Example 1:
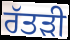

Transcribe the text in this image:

ਰੱਤੜੀ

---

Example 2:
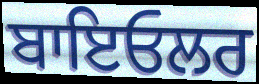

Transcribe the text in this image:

ਬਾਇਓਲਰ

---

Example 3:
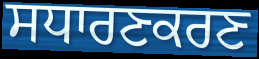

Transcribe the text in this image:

ਸਧਾਰਣਕਰਣ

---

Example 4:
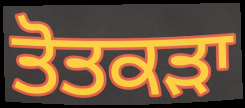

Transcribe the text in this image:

ਤੋਤਕੜਾ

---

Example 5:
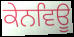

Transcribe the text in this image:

ਕੇਨਵਿਊ